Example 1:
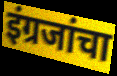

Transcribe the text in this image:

इंग्रजांचा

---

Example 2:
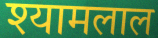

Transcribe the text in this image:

श्यामलाल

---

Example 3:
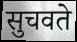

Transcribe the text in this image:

सुचवते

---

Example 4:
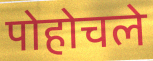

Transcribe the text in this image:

पोहोचले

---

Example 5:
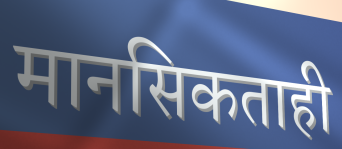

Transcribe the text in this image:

मानसिकताही